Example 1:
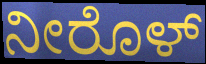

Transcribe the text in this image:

ನೀರೊಳ್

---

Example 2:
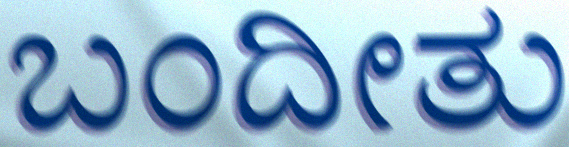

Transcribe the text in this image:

ಬಂದೀತು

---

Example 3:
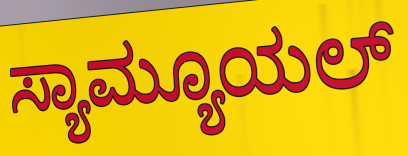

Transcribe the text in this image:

ಸ್ಯಾಮ್ಯೂಯಲ್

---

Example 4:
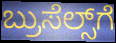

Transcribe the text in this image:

ಬ್ರುಸೆಲ್ಸ್‌ಗೆ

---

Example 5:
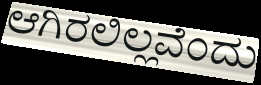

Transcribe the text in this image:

ಆಗಿರಲಿಲ್ಲವೆಂದು